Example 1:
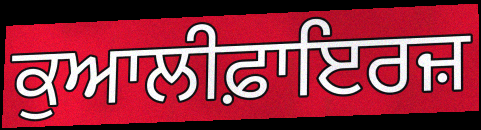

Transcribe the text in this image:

ਕੁਆਲੀਫ਼ਾਇਰਜ਼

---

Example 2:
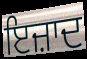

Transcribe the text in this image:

ਇਜ਼ਾਦ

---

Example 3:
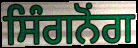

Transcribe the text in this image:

ਸਿੰਗਨੋਂਗ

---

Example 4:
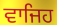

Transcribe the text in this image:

ਵਾਜਿਹ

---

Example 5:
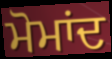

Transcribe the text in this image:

ਮੋਮਾਂਦ